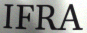
IFRA